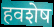
हवशेष